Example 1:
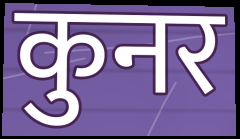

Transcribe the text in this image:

कुनर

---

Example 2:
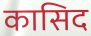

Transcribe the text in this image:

कासिद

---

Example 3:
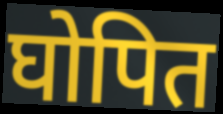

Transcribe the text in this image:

घोपित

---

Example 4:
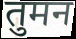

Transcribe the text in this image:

तुमन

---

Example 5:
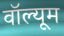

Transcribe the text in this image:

वॉल्यूम